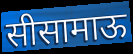
सीसामाऊ